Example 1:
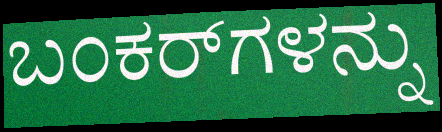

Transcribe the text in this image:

ಬಂಕರ್‌ಗಳನ್ನು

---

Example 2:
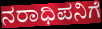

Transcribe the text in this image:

ನರಾಧಿಪನಿಗೆ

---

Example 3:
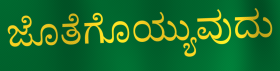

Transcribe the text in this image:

ಜೊತೆಗೊಯ್ಯುವುದು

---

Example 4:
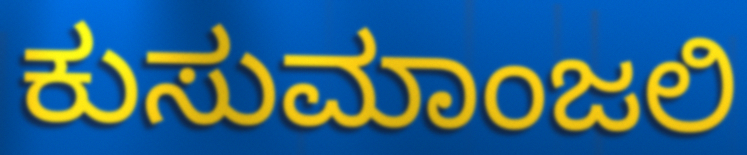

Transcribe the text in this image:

ಕುಸುಮಾಂಜಲಿ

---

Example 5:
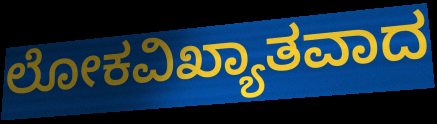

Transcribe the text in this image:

ಲೋಕವಿಖ್ಯಾತವಾದ